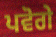
ਪਵੋਗੇ